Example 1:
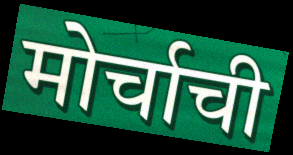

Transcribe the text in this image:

मोर्चाची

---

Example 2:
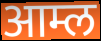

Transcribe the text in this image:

आम्‍ल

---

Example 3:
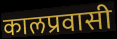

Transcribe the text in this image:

कालप्रवासी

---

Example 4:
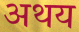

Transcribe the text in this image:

अथय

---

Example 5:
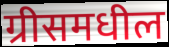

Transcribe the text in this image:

ग्रीसमधील